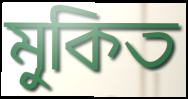
মুকিত